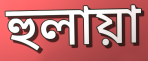
হুলায়া